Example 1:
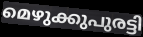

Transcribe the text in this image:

മെഴുക്കുപുരട്ടി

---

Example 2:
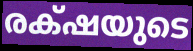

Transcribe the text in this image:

രക്‌ഷയുടെ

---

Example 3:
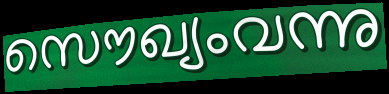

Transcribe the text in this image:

സൌഖ്യംവന്നു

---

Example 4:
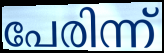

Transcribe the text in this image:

പേരിന്ന്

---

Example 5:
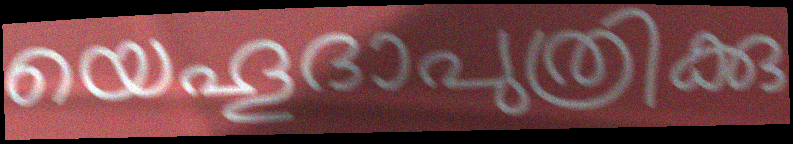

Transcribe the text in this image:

യെഹൂദാപുത്രിക്കു